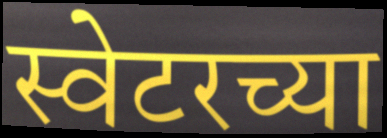
स्वेटरच्या